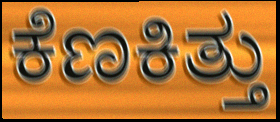
ಕೆಣಕಿತ್ತು